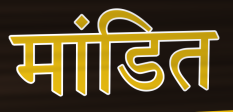
मांडित